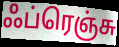
ஃப்ரெஞ்சு